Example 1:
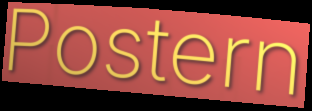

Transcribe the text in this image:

Postern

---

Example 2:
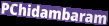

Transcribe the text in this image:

PChidambaram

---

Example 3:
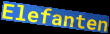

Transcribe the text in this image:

Elefanten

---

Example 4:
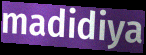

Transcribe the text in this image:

madidiya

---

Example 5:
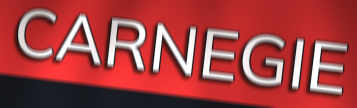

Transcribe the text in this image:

CARNEGIE